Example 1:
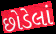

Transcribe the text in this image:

છોડેલાં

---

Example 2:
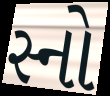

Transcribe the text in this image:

સ્નો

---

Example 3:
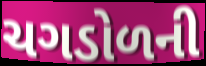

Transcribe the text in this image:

ચગડોળની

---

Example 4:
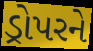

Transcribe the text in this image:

ડ્રોપરને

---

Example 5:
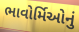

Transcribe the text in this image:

ભાવોર્મિઓનું